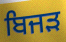
ਬਿਜੜ